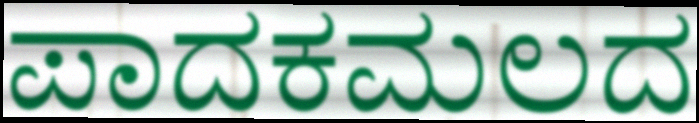
ಪಾದಕಮಲದ